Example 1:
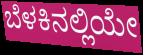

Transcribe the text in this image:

ಬೆಳಕಿನಲ್ಲಿಯೇ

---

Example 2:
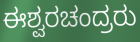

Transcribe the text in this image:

ಈಶ್ವರಚಂದ್ರರು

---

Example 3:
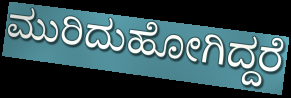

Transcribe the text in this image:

ಮುರಿದುಹೋಗಿದ್ದರೆ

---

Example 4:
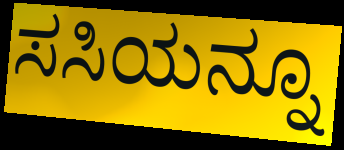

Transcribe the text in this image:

ಸಸಿಯನ್ನೂ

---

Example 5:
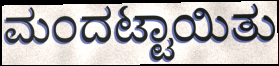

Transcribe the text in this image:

ಮಂದಟ್ಟಾಯಿತು